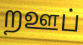
றஊப்